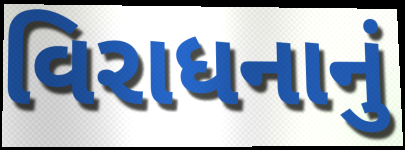
વિરાધનાનું